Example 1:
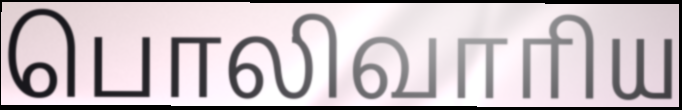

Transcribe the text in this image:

பொலிவாரிய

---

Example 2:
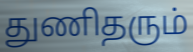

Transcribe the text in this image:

துணிதரும்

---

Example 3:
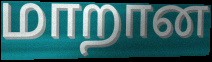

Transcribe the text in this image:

மாறான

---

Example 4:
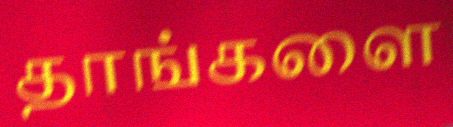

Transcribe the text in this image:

தாங்களை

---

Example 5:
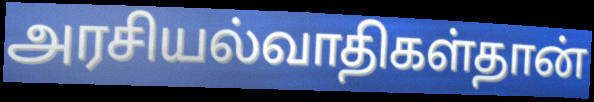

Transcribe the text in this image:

அரசியல்வாதிகள்தான்